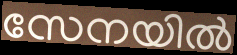
സേനയിൽ